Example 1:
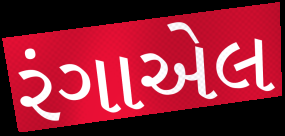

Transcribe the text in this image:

રંગાએલ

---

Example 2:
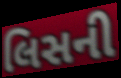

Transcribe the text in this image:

લિસની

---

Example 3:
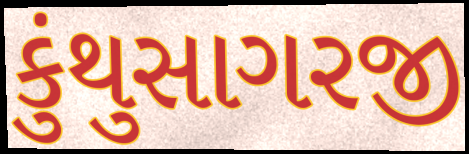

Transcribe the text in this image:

કુંથુસાગરજી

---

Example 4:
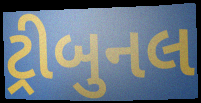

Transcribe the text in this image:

ટ્રીબુનલ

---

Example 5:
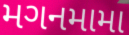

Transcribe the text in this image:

મગનમામા